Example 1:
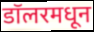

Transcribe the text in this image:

डॉलरमधून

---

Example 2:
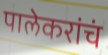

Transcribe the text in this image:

पालेकरांचं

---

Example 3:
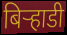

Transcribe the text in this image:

बिर्‍हाडी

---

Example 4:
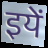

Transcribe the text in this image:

इयें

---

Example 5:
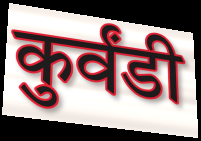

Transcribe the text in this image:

कुर्वंडी